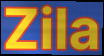
Zila